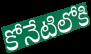
కోనేటిలోకి